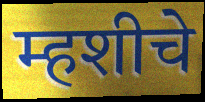
म्हशीचे